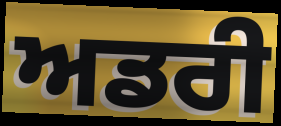
ਅਡਰੀ